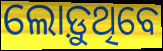
ଲୋଡ଼ୁଥିବେ